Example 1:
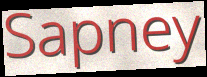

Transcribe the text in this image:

Sapney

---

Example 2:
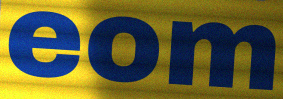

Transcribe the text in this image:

eom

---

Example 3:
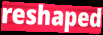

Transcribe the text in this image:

reshaped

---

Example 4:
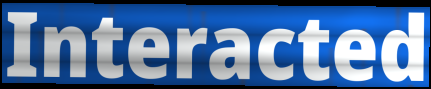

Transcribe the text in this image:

Interacted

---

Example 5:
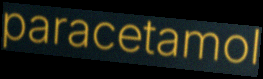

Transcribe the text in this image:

paracetamol